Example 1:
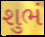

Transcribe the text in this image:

શુભં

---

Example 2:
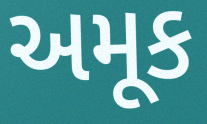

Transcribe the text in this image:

અમૂક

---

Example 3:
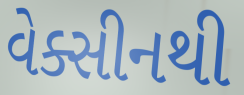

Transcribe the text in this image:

વેક્સીનથી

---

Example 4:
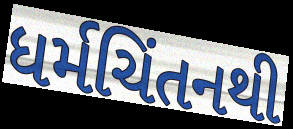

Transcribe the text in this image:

ધર્મચિંતનથી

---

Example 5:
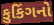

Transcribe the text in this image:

કુકિંગનો